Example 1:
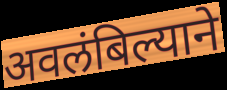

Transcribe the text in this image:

अवलंबिल्याने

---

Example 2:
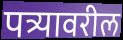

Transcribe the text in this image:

पत्र्यावरील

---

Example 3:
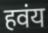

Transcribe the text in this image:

हवंय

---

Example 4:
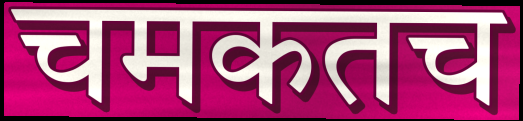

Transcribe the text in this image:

चमकतच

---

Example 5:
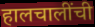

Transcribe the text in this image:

हालचालींची